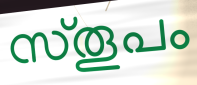
സ്തൂപം